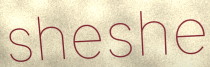
sheshe